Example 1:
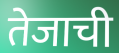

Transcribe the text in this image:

तेजाची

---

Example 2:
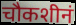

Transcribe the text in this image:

चौकशीनं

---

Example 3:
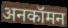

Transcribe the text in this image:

अनकॉमन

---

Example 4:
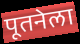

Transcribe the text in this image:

पूतनेला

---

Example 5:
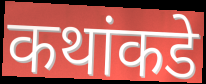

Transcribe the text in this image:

कथांकडे